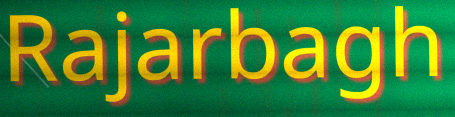
Rajarbagh